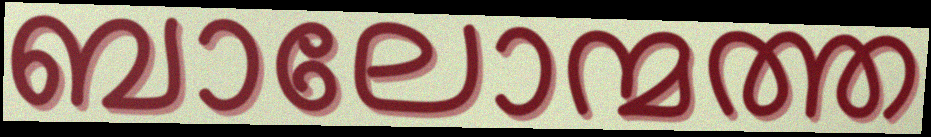
ബാലോന്മത്ത